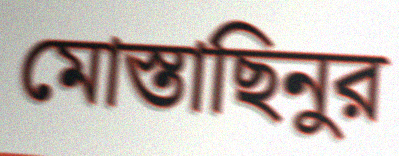
মোস্তাছিনুর